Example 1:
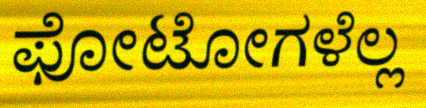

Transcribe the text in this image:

ಫೋಟೋಗಳೆಲ್ಲ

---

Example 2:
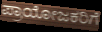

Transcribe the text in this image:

ಪ್ರಾಯೋಜಕರಿಗೆ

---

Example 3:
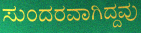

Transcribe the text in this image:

ಸುಂದರವಾಗಿದ್ದವು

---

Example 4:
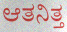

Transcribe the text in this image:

ಆತನಿತ್ತ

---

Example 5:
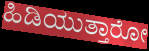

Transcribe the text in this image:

ಹಿಡಿಯುತ್ತಾರೋ